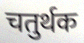
चतुर्थक